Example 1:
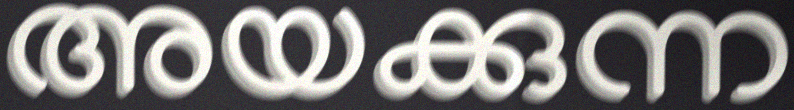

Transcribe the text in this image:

അയക്കുന്ന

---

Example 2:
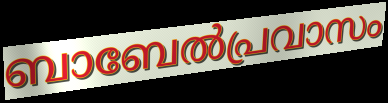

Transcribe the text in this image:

ബാബേൽപ്രവാസം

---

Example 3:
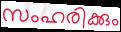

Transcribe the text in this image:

സംഹരിക്കും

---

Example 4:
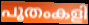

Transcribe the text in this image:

പൂതംകളി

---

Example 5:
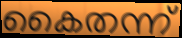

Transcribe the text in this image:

കൈതന്ന്